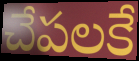
చేపలకే